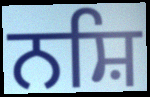
ਨਸ਼ਿ